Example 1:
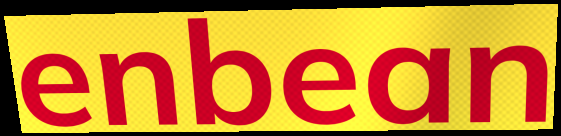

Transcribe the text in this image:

enbean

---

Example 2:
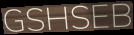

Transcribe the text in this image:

GSHSEB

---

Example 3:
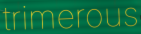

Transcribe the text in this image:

trimerous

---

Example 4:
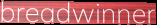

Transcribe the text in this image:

breadwinner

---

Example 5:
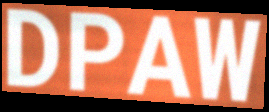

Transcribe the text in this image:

DPAW